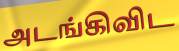
அடங்கிவிட